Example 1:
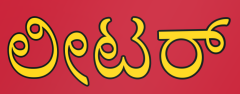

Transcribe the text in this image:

ಲೀಟರ್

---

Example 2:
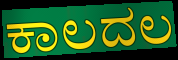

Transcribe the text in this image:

ಕಾಲದಲ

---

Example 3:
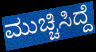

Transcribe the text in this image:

ಮುಚ್ಚಿಸಿದ್ದೆ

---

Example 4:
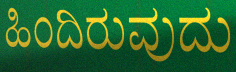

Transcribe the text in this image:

ಹಿಂದಿರುವುದು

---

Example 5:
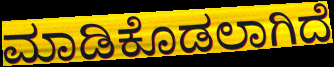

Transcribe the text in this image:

ಮಾಡಿಕೊಡಲಾಗಿದೆ